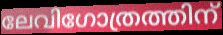
ലേവിഗോത്രത്തിന്